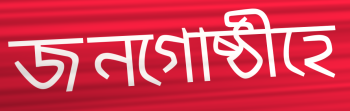
জনগোষ্ঠীহে